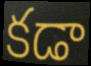
కడా